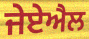
ਜੇਏਐਲ